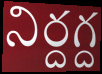
నిర్దగ్ద